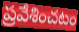
ప్రవేశించటం